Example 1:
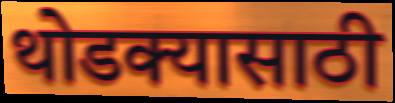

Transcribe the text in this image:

थोडक्यासाठी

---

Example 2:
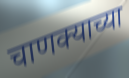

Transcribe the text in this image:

चाणक्याच्या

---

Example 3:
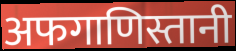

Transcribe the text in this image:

अफगाणिस्तानी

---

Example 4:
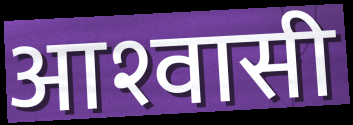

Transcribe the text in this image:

आश्वासी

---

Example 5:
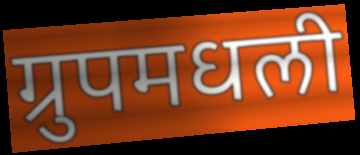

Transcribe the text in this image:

ग्रुपमधली